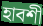
হাবশী